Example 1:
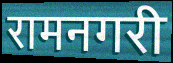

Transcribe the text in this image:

रामनगरी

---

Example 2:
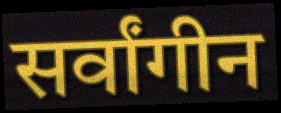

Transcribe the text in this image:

सर्वांगीन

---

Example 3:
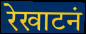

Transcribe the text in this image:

रेखाटनं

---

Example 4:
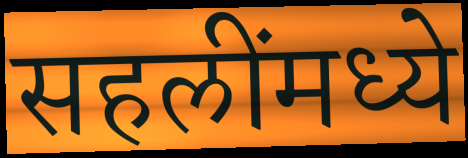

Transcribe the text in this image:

सहलींमध्ये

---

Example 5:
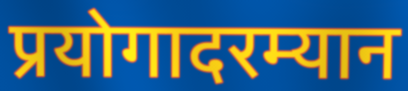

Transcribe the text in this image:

प्रयोगादरम्यान